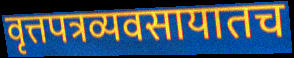
वृत्तपत्रव्यवसायातच